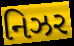
નિઝર